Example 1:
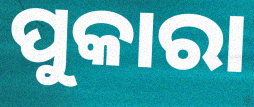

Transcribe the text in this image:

ପୁକାରା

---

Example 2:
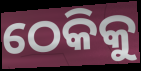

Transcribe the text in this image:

ଠେକିକୁ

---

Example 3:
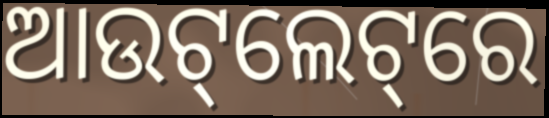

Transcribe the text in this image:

ଆଉଟ୍‌ଲେଟ୍‌ରେ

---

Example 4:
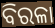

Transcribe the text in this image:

ବିରଳା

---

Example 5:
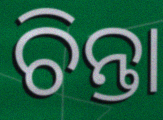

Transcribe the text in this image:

ଚିନ୍ତା